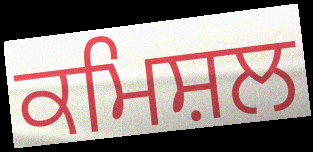
ਕਮਿਸ਼ਲ